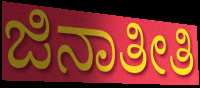
ಜಿನಾತೀತಿ